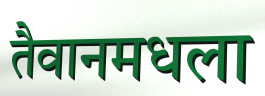
तैवानमधला